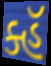
ક્હૅ